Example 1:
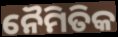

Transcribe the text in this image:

ନୈମିତିକ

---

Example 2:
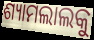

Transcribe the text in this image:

ଶ୍ୟାମଲାଲକୁ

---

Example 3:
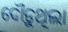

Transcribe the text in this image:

ଦୌଡ଼ୁଥିଲା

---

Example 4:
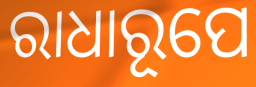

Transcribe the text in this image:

ରାଧାରୂପେ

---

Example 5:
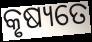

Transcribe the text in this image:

କୃଷ୍ୟତେ